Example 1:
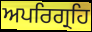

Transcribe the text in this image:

ਅਪਰਿਗ੍ਰਹਿ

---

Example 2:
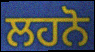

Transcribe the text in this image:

ਲਹਨੋ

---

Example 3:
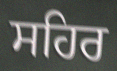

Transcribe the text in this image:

ਸਹਿਰ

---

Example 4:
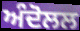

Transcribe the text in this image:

ਅੰਦੋਲਲ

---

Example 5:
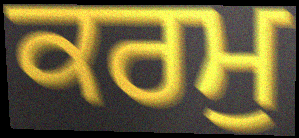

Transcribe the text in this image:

ਕਰਮੁ